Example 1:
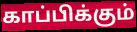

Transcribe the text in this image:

காப்பிக்கும்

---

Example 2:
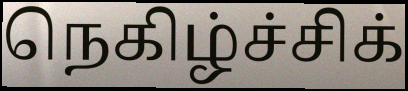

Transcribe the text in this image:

நெகிழ்ச்சிக்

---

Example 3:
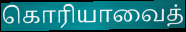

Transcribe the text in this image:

கொரியாவைத்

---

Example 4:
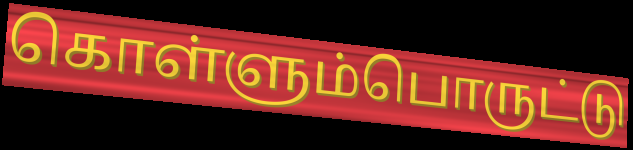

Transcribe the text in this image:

கொள்ளும்பொருட்டு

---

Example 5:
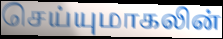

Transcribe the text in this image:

செய்யுமாகலின்